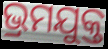
ଭ୍ରମଯୁକ୍ତ